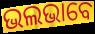
ଭଲଭାବେ